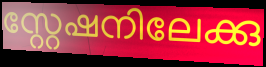
സ്റ്റേഷനിലേക്കു